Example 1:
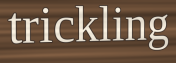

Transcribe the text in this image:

trickling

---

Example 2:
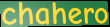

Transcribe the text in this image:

chahero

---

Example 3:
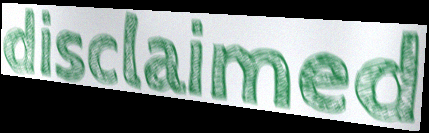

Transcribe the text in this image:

disclaimed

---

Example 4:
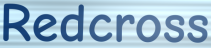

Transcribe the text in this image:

Redcross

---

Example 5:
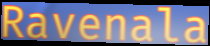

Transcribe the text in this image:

Ravenala